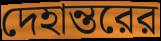
দেহান্তরের